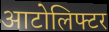
आटोलिफ्टर